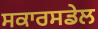
ਸਕਾਰਸਡੇਲ